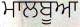
ਮਾਲਬੂਆ